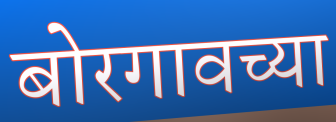
बोरगावच्या